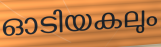
ഓടിയകലും